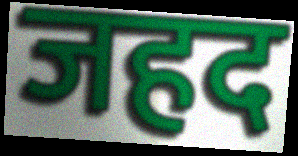
जहद